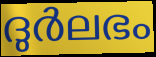
ദുർലഭം